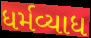
ધર્મવ્યાધ